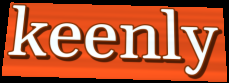
keenly